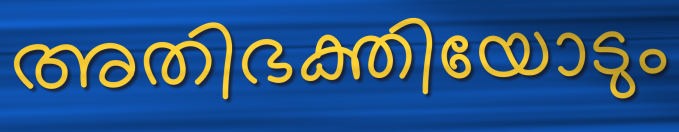
അതിഭക്തിയോടും